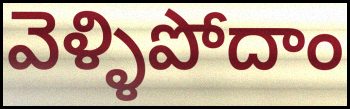
వెళ్ళిపోదాం